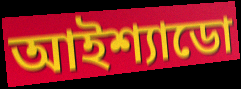
আইশ্যাডো